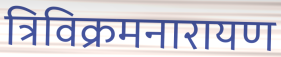
त्रिविक्रमनारायण